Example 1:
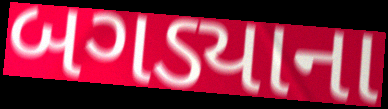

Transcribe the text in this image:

બગડ્યાના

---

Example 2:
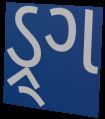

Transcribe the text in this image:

ડ્ર્ગ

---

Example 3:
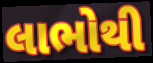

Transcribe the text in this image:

લાભોથી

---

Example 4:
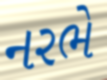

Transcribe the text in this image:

નરભે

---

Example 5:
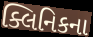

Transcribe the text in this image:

ક્લિનિકના